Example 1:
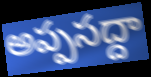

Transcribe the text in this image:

అప్పసద్దా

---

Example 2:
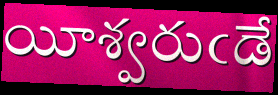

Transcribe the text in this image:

యీశ్వరుఁడే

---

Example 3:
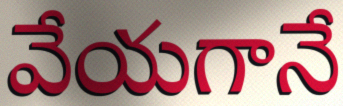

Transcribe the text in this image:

వేయగానే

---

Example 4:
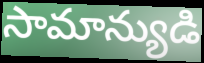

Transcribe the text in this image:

సామాన్యుడి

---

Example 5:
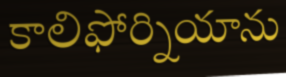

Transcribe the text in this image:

కాలిఫోర్నియాను